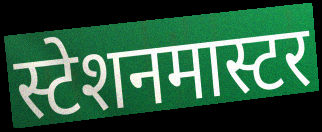
स्टेशनमास्टर